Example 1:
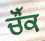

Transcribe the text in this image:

ਚੌੱਕ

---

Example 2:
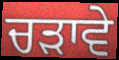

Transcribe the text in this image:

ਚੜਾਵੇ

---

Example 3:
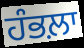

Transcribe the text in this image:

ਹੰਭਲ਼ਾ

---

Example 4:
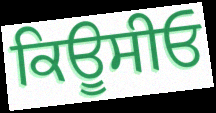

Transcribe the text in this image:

ਕਿਊਸੀਓ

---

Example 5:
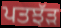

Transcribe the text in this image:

ਪਤਝੱੜ